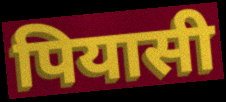
पियासी